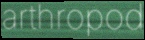
arthropod